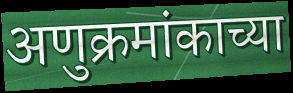
अणुक्रमांकाच्या